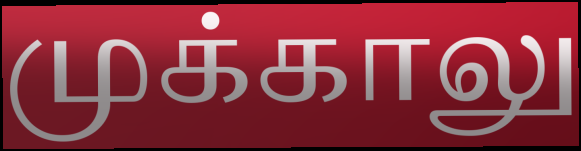
முக்காலு